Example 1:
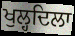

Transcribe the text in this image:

ਖੁਲ੍ਹਦਿਲਾ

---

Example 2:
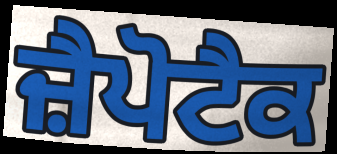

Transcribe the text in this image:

ਜ਼ੈਪੋਟੈਕ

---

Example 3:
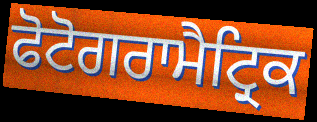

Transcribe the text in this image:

ਫੋਟੋਗਰਾਮੈਟ੍ਰਿਕ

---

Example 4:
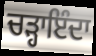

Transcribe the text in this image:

ਚੜ੍ਹਾਇੰਦਾ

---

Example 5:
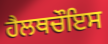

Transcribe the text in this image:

ਹੈਲਥਚੌਇਸ